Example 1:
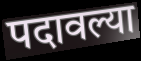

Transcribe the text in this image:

पदावल्या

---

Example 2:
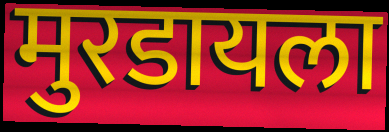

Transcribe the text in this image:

मुरडायला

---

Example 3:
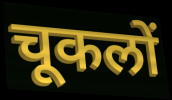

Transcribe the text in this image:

चूकलों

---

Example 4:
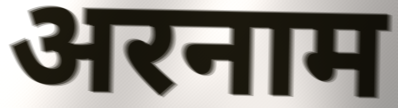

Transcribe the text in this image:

अरनाम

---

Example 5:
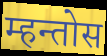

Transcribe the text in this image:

म्हन्तोस